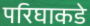
परिघाकडे